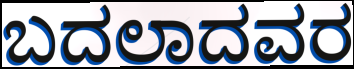
ಬದಲಾದವರ